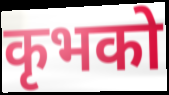
कृभको